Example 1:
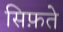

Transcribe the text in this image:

सिफ़ते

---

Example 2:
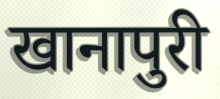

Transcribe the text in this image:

खानापुरी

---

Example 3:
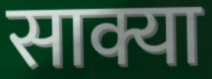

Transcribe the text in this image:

साक्या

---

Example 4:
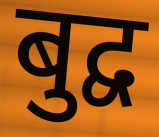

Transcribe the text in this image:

बुद्व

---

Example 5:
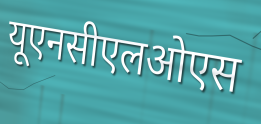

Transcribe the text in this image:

यूएनसीएलओएस